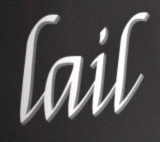
lail